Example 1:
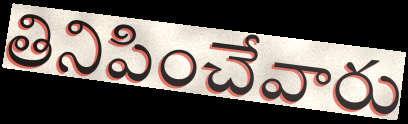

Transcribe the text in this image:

తినిపించేవారు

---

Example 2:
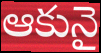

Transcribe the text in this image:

ఆకునై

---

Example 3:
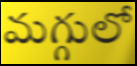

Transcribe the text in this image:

మగ్గులో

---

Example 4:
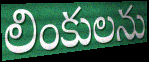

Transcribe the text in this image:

లింకులను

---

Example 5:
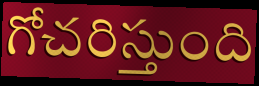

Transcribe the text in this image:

గోచరిస్తుంది